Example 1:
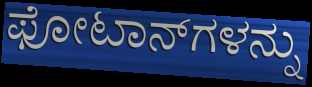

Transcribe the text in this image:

ಫೋಟಾನ್‌ಗಳನ್ನು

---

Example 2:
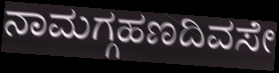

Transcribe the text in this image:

ನಾಮಗ್ಗಹಣದಿವಸೇ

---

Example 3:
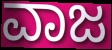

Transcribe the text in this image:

ವಾಜ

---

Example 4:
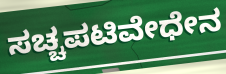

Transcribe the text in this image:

ಸಚ್ಚಪಟಿವೇಧೇನ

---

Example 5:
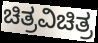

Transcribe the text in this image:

ಚಿತ್ರವಿಚಿತ್ರ